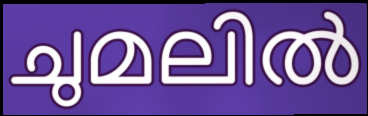
ചുമലിൽ